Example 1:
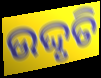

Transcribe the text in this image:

ଉଦ୍ଦୃତି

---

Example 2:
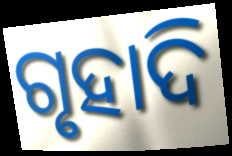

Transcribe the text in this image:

ଗୃହାଦି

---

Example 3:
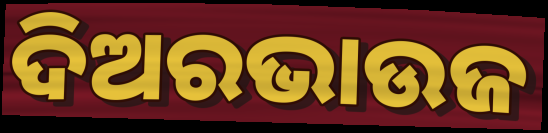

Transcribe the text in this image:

ଦିଅରଭାଉଜ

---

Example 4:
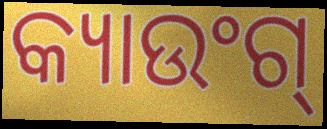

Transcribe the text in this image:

କ୍ୟାଉଂଗ୍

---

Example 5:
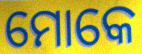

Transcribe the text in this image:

ମୋକେ